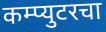
कम्प्युटरचा